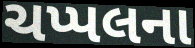
ચપ્પલના